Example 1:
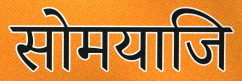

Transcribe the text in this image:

सोमयाजि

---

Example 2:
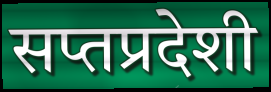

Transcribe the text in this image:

सप्तप्रदेशी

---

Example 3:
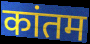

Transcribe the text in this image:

कांतम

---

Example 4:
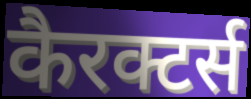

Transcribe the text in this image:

कैरक्टर्स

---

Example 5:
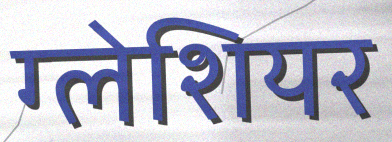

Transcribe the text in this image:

ग्लेशियर